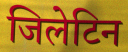
जिलेटिन